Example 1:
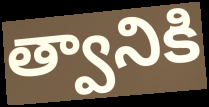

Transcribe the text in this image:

త్వానికి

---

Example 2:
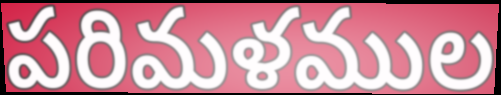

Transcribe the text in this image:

పరిమళముల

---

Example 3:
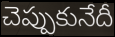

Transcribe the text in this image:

చెప్పుకునేదీ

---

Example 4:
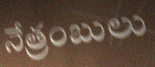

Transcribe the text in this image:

నేత్రంబులు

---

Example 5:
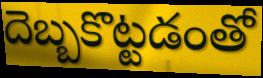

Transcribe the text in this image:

దెబ్బకొట్టడంతో